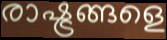
രാഷ്ട്രങ്ങളെ